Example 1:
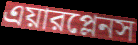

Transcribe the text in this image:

এয়ারপ্লেনস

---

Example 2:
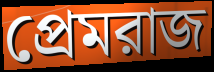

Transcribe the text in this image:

প্রেমরাজ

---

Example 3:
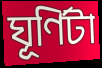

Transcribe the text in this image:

ঘূর্ণিটা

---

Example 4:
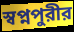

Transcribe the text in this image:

স্বপ্নপুরীর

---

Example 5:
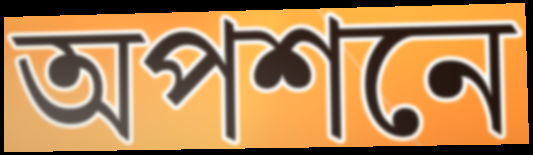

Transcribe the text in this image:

অপশনে